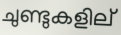
ചുണ്ടുകളില്